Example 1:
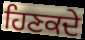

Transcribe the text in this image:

ਹਿਣਕਦੇ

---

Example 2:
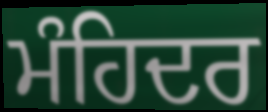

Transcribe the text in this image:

ਮੰਹਿਦਰ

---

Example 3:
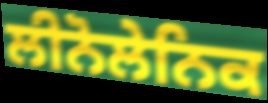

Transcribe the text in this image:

ਲੀਨੋਲੇਨਿਕ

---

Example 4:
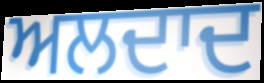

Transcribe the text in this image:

ਅਲਦਾਦ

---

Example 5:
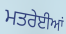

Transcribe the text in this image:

ਮਤਰੇਈਆਂ